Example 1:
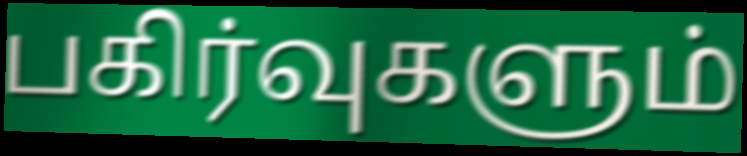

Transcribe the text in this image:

பகிர்வுகளும்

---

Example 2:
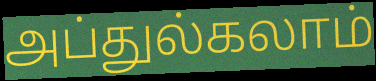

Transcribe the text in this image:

அப்துல்கலாம்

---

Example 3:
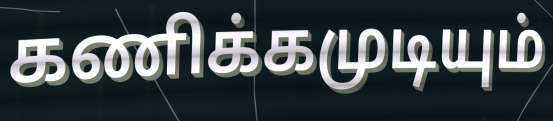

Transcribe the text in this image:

கணிக்கமுடியும்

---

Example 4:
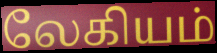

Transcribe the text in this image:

லேகியம்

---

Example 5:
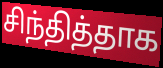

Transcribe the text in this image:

சிந்தித்தாக